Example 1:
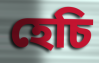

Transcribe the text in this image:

হেচি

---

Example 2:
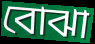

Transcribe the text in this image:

বোঝা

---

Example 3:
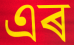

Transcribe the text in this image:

এৰ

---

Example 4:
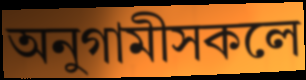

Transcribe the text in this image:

অনুগামীসকলে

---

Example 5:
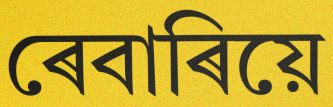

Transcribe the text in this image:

ৰেবাৰিয়ে